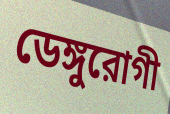
ডেঙ্গুরোগী